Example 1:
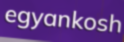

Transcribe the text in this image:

egyankosh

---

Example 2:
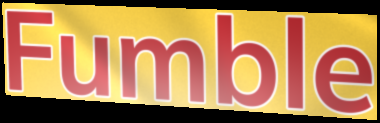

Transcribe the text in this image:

Fumble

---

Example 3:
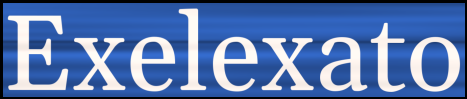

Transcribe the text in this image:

Exelexato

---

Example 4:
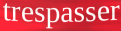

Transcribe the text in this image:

trespasser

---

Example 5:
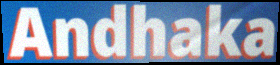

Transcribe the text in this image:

Andhaka